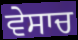
ਵੇਸਾਚ